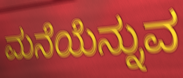
ಮನೆಯೆನ್ನುವ